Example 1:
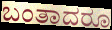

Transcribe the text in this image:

ಬಂತಾದರೂ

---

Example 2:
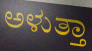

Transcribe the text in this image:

ಅಳುತ್ತಾ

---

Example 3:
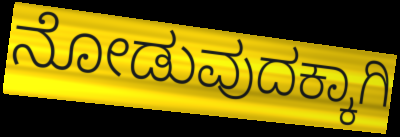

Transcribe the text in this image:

ನೋಡುವುದಕ್ಕಾಗಿ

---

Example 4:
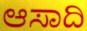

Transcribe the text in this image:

ಆಸಾದಿ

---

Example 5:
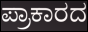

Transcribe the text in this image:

ಪ್ರಾಕಾರದ